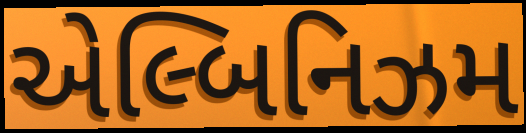
એલ્બિનિઝમ